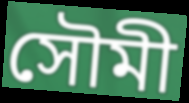
সৌমী